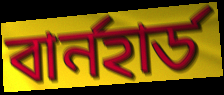
বার্নহার্ড